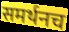
समर्थनच